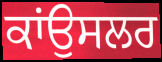
ਕਾਂਉਸਲਰ